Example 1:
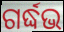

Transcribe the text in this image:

ଗର୍ଦ୍ଧଭ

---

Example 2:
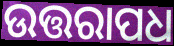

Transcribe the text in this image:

ଉତ୍ତରାପଧ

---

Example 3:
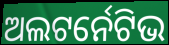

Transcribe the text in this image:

ଅଲଟର୍ନେଟିଭ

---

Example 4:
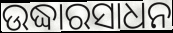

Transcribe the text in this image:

ଉଦ୍ଧାରସାଧନ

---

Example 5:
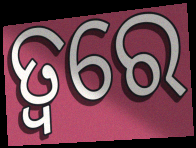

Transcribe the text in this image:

ତ୍ଵରେ